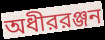
অধীররঞ্জন